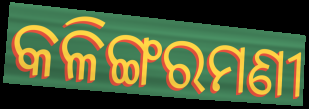
କଳିଙ୍ଗରମଣୀ